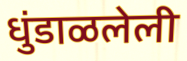
धुंडाळलेली